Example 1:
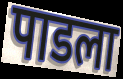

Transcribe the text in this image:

पाडला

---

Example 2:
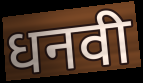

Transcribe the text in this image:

धनवी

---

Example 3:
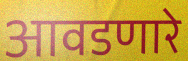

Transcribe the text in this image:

आवडणारे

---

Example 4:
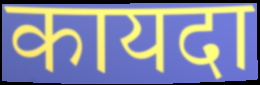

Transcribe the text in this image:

कायदा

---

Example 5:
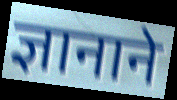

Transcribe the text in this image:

ज्ञानाने